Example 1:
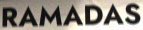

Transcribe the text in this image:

RAMADAS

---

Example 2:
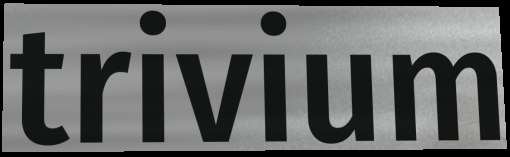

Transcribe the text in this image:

trivium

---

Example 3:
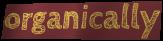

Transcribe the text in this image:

organically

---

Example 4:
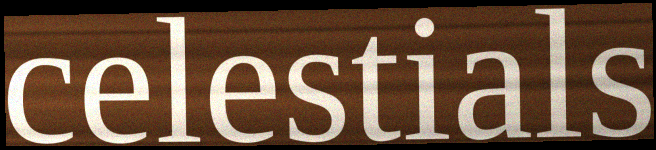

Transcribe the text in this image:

celestials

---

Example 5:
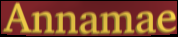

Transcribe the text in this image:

Annamae